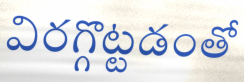
విరగ్గొట్టడంతో